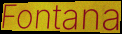
Fontana